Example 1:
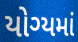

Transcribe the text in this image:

યોગ્યમાં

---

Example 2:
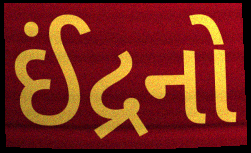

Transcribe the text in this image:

ઈંદ્રનો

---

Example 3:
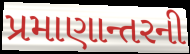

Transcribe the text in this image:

પ્રમાણાન્તરની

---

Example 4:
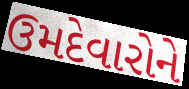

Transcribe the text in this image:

ઉમદેવારોને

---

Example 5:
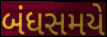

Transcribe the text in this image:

બંધસમયે